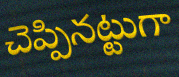
చెప్పినట్టుగా